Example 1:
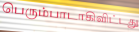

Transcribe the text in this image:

பெரும்பாடாகிவிட்டது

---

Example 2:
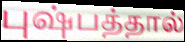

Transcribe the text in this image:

புஷ்பத்தால்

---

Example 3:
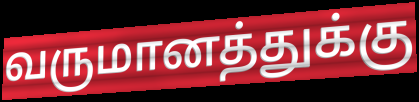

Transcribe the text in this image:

வருமானத்துக்கு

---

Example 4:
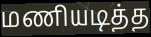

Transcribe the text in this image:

மணியடித்த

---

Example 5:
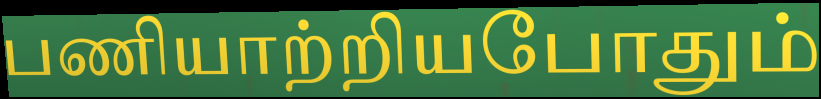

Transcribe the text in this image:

பணியாற்றியபோதும்